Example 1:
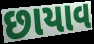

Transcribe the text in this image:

છાયાવ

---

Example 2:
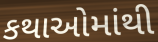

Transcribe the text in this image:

કથાઓમાંથી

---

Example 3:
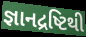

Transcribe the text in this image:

જ્ઞાનદ્રષ્ટિથી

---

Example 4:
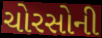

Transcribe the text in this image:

ચોરસોની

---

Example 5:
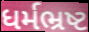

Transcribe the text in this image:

ધર્મભ્રષ્ટ